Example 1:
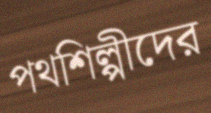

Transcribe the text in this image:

পথশিল্পীদের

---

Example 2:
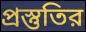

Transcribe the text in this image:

প্রস্তুতির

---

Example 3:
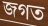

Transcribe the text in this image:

জগত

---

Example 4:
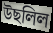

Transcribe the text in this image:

উছলিল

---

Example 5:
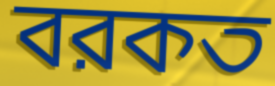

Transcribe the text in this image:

বরকত